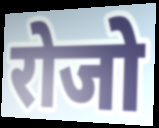
रोजो